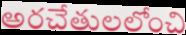
అరచేతులలోంచి